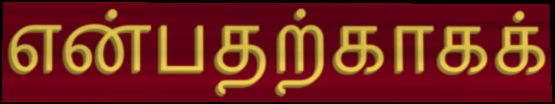
என்பதற்காகக்